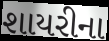
શાયરીના